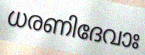
ധരണിദേവാഃ